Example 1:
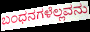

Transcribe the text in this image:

ಬಂಧನಗಳೆಲ್ಲವನು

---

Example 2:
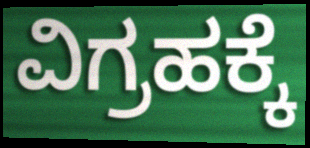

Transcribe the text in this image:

ವಿಗ್ರಹಕ್ಕೆ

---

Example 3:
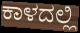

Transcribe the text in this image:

ಕಾಳದಲ್ಲಿ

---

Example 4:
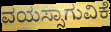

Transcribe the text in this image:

ವಯಸ್ಸಾಗುವಿಕೆ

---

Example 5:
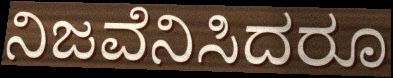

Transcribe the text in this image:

ನಿಜವೆನಿಸಿದರೂ